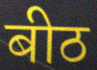
बीठ